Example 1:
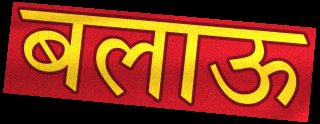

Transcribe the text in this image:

बलाऊ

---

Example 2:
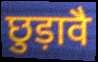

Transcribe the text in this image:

छुड़ावै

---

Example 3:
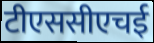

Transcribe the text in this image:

टीएससीएचई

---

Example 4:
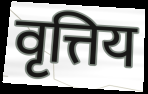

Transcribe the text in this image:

वृत्तिय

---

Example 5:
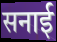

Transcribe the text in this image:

सनाई